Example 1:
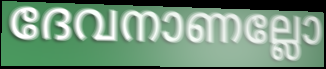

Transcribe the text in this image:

ദേവനാണല്ലോ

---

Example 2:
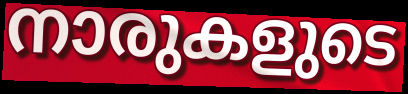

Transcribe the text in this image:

നാരുകളുടെ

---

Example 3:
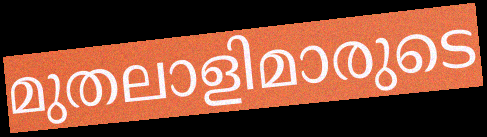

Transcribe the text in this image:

മുതലാളിമാരുടെ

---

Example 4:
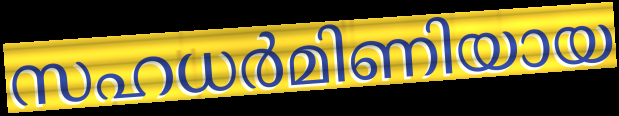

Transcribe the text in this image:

സഹധർമിണിയായ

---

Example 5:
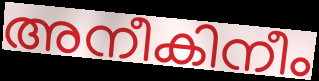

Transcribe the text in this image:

അനീകിനീം